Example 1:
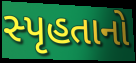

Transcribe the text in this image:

સ્પૃહતાનો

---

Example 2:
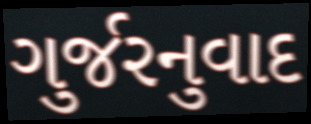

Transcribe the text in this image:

ગુર્જરનુવાદ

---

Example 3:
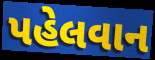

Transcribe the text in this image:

પહેલવાન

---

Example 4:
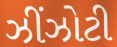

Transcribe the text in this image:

ઝીંઝોટી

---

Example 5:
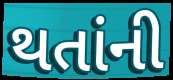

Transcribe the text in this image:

થતાંની